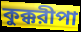
কুক্করীপা